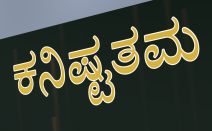
ಕನಿಷ್ಟತಮ